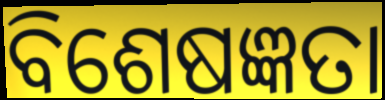
ବିଶେଷଜ୍ଞତା